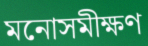
মনোসমীক্ষণ